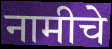
नामीचे